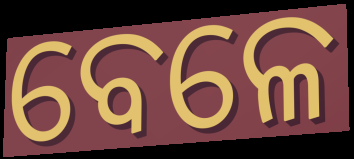
ବେଳେ